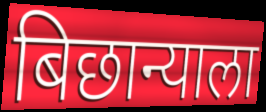
बिछान्याला